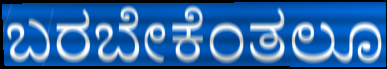
ಬರಬೇಕೆಂತಲೂ